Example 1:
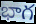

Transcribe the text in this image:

భాగ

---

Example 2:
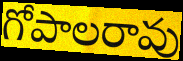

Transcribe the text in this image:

గోపాలరావు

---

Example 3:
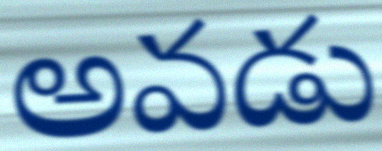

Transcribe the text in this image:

అవడు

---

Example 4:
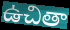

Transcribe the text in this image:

ఉచితా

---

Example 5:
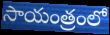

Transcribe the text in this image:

సాయంత్రంలో